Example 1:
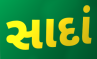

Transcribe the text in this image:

સાદાં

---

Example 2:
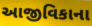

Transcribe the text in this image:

આજીવિકાના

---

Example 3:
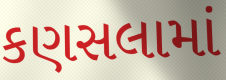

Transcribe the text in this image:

કણસલામાં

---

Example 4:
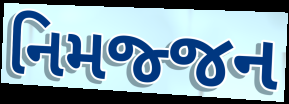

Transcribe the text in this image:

નિમજ્જન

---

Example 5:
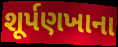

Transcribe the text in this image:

શૂર્પણખાના